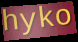
hyko